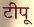
टीपू